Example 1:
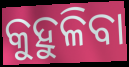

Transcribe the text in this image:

କୁହୁଳିବା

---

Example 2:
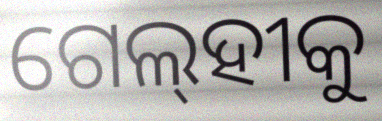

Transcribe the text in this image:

ଗେଲ୍‌ହୀକୁ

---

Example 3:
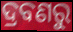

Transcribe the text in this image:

ଦ୍ରବଣରୁ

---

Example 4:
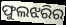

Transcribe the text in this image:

ଫୁଲଝରିର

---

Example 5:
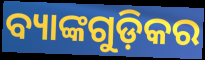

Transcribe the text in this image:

ବ୍ୟାଙ୍କଗୁଡ଼ିକର